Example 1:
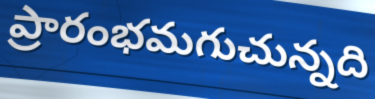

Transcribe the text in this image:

ప్రారంభమగుచున్నది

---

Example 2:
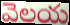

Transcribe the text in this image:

వెలయ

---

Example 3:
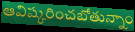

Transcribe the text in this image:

ఆవిష్కరించబోతున్నాం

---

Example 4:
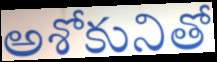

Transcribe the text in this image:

అశోకునితో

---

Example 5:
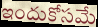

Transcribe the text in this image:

ఇందుకోసమే